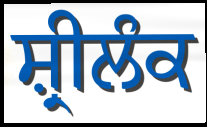
ਸ਼੍ਰੀਲੰਕ